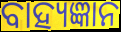
ବାହ୍ୟଜ୍ଞାନ